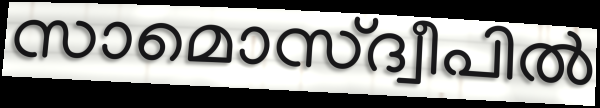
സാമൊസ്ദ്വീപിൽ